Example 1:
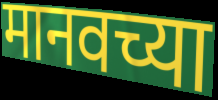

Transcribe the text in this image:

मानवच्या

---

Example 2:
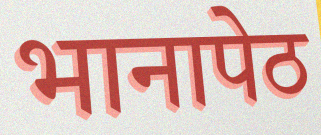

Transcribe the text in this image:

भानापेठ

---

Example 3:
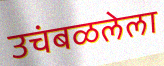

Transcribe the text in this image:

उचंबळलेला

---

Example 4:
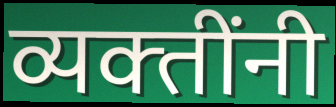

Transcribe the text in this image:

व्यक्‍तींनी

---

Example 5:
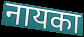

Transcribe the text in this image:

नायका